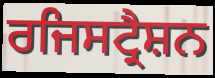
ਰਜਿਸਟ੍ਰੈਸ਼ਨ